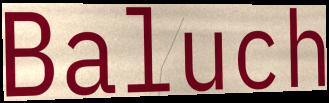
Baluch